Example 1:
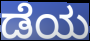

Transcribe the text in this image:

ಡೆಯ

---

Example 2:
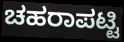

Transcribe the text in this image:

ಚಹರಾಪಟ್ಟಿ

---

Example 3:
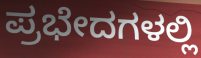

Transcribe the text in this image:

ಪ್ರಭೇದಗಳಲ್ಲಿ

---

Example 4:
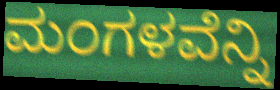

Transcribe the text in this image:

ಮಂಗಳವೆನ್ನಿ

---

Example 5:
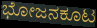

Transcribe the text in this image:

ಭೋಜನಕೂಟ